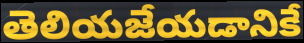
తెలియజేయడానికే